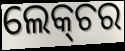
ଲେକ୍‍ଚର